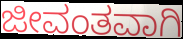
ಜೀವಂತವಾಗಿ